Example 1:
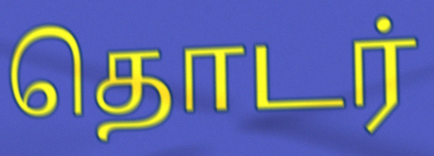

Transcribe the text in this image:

தொடர்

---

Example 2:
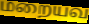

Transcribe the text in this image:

மறையவ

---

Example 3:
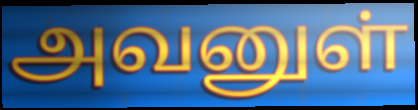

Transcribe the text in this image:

அவனுள்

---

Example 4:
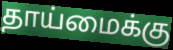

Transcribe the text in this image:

தாய்மைக்கு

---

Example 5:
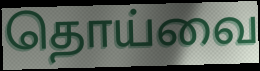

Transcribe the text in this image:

தொய்வை